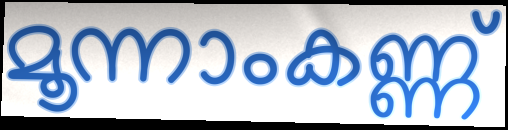
മൂന്നാംകണ്ണ്